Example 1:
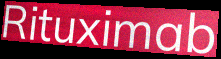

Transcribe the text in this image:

Rituximab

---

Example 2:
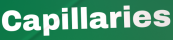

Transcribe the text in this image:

Capillaries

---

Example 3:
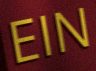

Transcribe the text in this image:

EIN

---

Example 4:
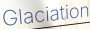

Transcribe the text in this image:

Glaciation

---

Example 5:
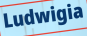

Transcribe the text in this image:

Ludwigia